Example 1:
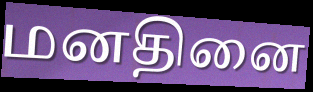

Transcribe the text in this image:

மனதினை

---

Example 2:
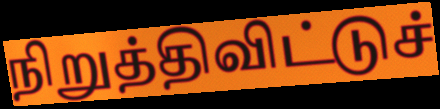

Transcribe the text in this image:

நிறுத்திவிட்டுச்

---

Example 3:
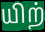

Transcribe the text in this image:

யிற்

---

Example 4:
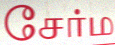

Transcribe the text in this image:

சேர்ம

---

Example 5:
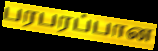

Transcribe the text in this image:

பரபரப்பான